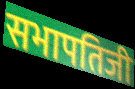
सभापतिजी